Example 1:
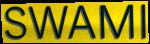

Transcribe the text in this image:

SWAMI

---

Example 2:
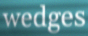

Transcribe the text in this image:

wedges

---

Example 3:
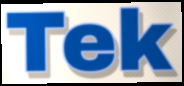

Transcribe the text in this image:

Tek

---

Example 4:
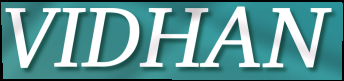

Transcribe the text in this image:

VIDHAN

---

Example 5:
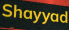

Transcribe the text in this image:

Shayyad